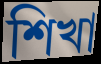
শিখা